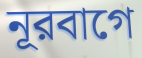
নূরবাগে